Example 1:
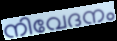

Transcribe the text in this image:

നിവേദനം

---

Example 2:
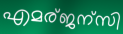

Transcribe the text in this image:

എമര്ജന്സി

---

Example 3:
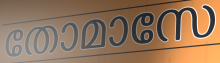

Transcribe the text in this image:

തോമാസേ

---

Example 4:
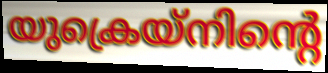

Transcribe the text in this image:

യുക്രെയ്നിന്റെ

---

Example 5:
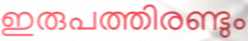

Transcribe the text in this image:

ഇരുപത്തിരണ്ടും